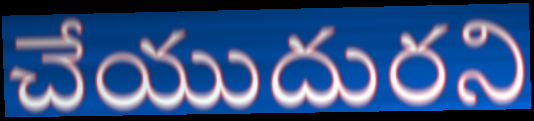
చేయుదురని